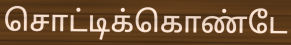
சொட்டிக்கொண்டே